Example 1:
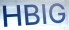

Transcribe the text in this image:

HBIG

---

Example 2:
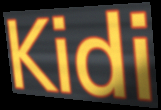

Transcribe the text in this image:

Kidi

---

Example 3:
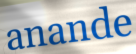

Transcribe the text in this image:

anande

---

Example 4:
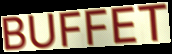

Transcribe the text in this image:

BUFFET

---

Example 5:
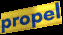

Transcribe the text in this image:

propel